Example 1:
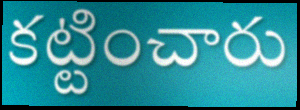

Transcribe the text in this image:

కట్టించారు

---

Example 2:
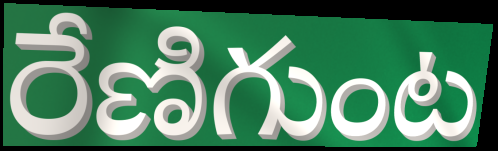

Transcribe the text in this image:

రేణిగుంట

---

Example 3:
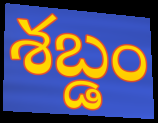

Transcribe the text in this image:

శబ్డం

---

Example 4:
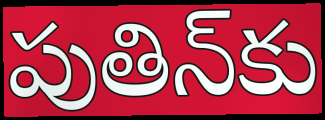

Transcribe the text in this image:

పుతిన్‌కు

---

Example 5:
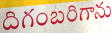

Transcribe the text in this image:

దిగంబరిగాను